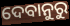
ଦେବାନୁରୁ